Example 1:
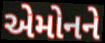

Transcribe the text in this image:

એમોનને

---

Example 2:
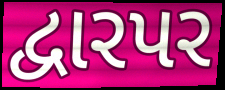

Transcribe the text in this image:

દ્વારપર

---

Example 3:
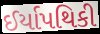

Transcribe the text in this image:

ઈર્યાપથિકી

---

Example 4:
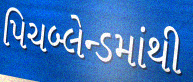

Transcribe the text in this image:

પિચબ્લેન્ડમાંથી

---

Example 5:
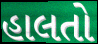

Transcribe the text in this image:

હાલતો